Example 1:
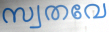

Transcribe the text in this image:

സ്വതവേ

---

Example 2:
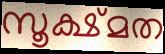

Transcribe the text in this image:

സൂക്ഷ്മത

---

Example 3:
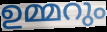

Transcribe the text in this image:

ഉമ്മറും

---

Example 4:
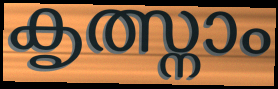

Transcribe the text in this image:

കൃത്സ്നാം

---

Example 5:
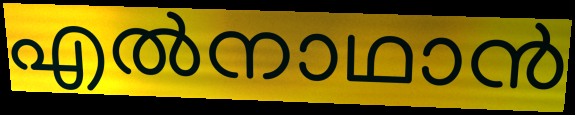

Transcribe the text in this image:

എൽനാഥാൻ